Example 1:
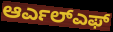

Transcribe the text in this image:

ಆರ್ಎಲ್ಎಫ್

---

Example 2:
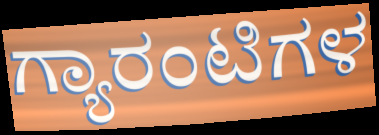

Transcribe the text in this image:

ಗ್ಯಾರಂಟಿಗಳ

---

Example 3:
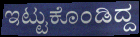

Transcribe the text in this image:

ಇಟ್ಟುಕೊಂಡಿದ್ದ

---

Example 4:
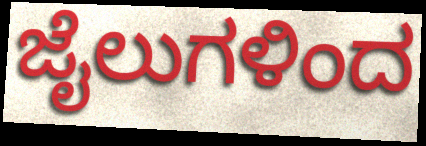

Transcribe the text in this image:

ಜೈಲುಗಳಿಂದ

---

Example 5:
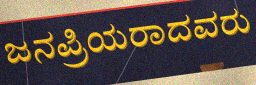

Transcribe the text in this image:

ಜನಪ್ರಿಯರಾದವರು